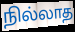
நில்லாத